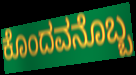
ಕೊಂದವನೊಬ್ಬ